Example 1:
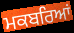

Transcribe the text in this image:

ਮਕਬਰਿਆਂ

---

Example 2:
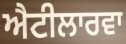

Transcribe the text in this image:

ਐਟੀਲਾਰਵਾ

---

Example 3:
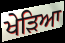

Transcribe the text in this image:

ਖੇੜਿਆ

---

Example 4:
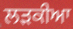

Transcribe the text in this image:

ਲੜਕੀਆ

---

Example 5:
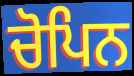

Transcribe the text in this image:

ਚੋਪਿਨ